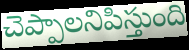
చెప్పాలనిపిస్తుంది